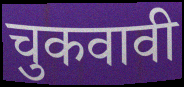
चुकवावी